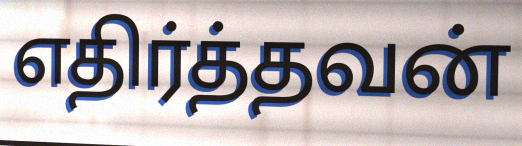
எதிர்த்தவன்